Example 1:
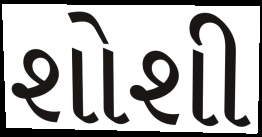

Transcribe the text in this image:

શોશી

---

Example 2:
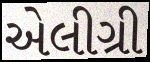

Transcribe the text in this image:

એલીગ્રી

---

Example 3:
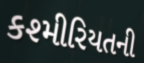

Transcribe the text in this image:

કશ્મીરિયતની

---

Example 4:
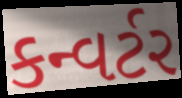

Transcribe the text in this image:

કન્વર્ટર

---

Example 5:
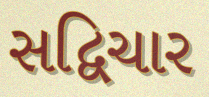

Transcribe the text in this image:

સદ્વિચાર